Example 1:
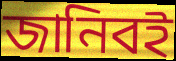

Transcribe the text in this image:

জানিবই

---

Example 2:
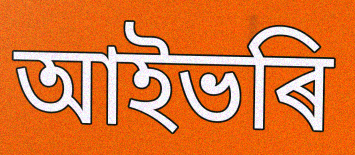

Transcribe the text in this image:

আইভৰি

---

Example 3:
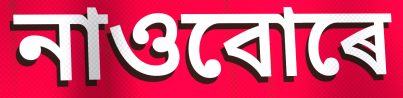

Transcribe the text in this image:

নাওবোৰে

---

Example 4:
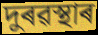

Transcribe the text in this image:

দুৰৱস্থাৰ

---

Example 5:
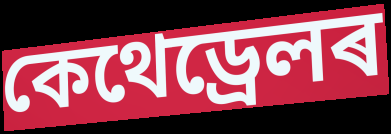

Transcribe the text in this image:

কেথেড্ৰেলৰ